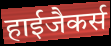
हाईजैकर्स